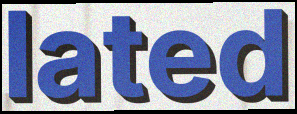
lated